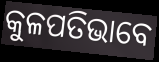
କୁଳପତିଭାବେ